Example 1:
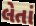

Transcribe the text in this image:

લેતાં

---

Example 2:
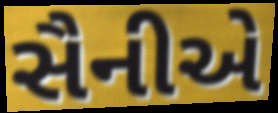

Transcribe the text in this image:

સૈનીએ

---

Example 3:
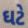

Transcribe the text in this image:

ઘટે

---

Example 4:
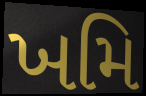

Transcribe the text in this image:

ખમિ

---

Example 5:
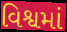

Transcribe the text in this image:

વિશ્વમાં